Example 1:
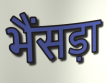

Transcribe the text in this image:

भैंसड़ा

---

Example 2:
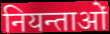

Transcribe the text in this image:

नियन्ताओं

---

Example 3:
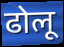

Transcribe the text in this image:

ढोलू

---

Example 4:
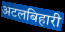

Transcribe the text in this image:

अटलबिहारी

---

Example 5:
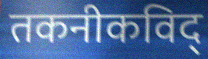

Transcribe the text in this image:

तकनीकविद्